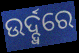
ଉର୍ଦ୍ଦ୍ୱରେ